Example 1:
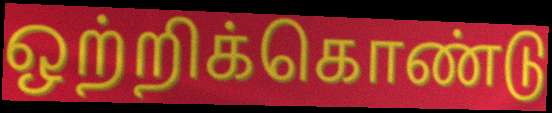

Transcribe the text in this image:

ஒற்றிக்கொண்டு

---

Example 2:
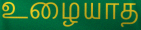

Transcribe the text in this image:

உழையாத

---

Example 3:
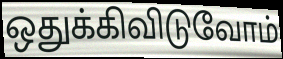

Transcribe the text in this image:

ஒதுக்கிவிடுவோம்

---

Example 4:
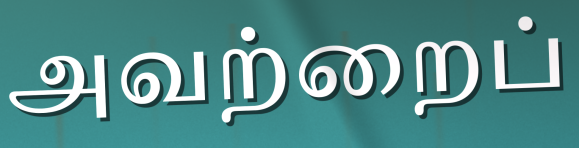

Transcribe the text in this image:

அவற்றைப்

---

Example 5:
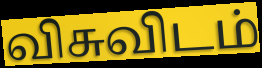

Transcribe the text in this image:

விசுவிடம்